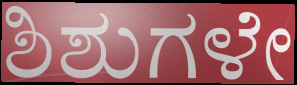
ಶಿಶುಗಳೇ